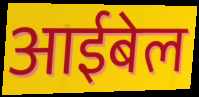
आईबेल